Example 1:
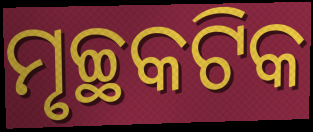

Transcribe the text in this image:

ମୃଚ୍ଛକଟିକ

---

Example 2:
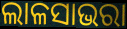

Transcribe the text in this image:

ଲାଳସାଭରା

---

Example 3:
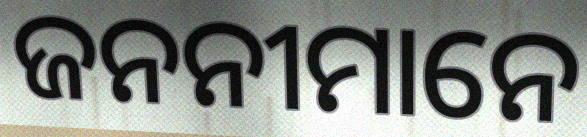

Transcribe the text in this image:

ଜନନୀମାନେ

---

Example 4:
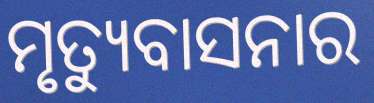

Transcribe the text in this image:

ମୃତ୍ୟୁବାସନାର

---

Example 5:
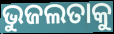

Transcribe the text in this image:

ଭୁଜଲତାକୁ